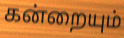
கன்றையும்